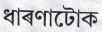
ধাৰণাটোক